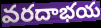
వరదాభయ